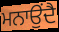
ਮਨਾਉਂਦੈ